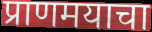
प्राणमयाचा